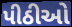
પીઠીઓ